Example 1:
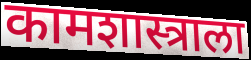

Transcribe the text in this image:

कामशास्त्राला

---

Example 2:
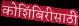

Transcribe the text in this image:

कोशिंबिरीसाठी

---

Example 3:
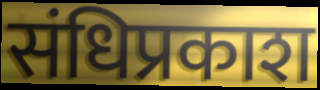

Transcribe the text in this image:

संधिप्रकाश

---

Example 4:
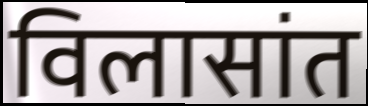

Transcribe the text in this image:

विलासांत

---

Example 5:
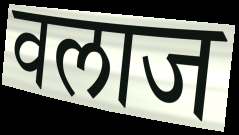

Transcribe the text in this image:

वलाज